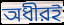
অধীরই